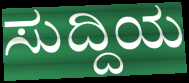
ಸುದ್ದಿಯ